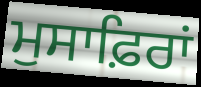
ਮੁਸਾਫ਼ਿਰਾਂ